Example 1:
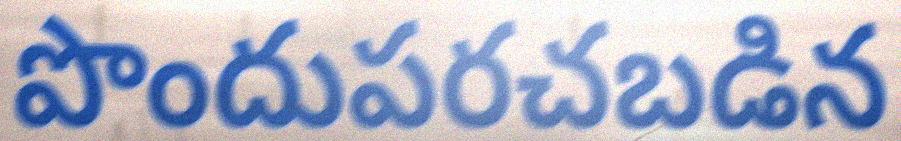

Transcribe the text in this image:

పొందుపరచబడిన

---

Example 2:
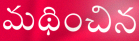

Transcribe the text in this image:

మథించిన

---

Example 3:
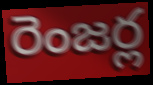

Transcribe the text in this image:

రెంజర్ల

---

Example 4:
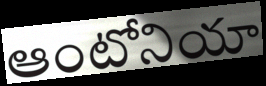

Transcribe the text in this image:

ఆంటోనియా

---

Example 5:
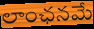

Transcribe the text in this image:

లాంఛనమే